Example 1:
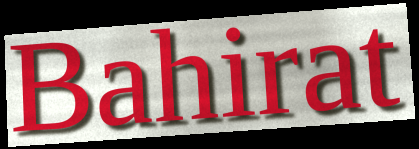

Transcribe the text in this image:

Bahirat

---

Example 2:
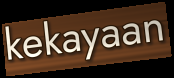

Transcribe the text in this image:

kekayaan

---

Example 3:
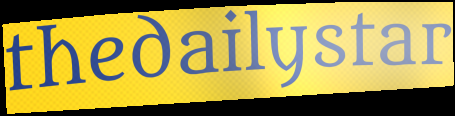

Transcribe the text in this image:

thedailystar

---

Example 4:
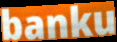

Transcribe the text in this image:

banku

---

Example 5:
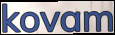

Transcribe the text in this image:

kovam